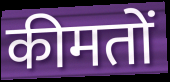
कीमतों